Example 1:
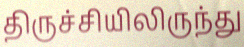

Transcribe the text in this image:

திருச்சியிலிருந்து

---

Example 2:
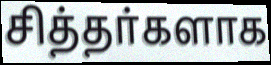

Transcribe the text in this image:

சித்தர்களாக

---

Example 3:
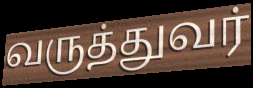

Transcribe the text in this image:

வருத்துவர்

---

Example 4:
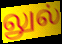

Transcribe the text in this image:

லுல்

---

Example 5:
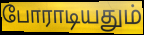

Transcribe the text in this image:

போராடியதும்